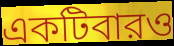
একটিবারও